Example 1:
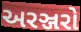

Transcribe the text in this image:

અરઞ્જરો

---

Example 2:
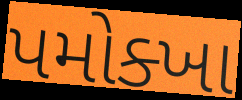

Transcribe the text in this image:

પમોક્ખા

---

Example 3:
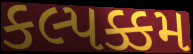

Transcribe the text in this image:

કલ્પક્કમ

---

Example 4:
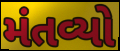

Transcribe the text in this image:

મંતવ્યો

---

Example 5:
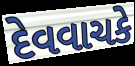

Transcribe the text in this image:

દેવવાચકે